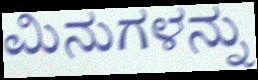
ಮಿನುಗಳನ್ನು